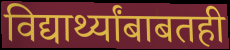
विद्यार्थ्यांबाबतही